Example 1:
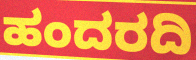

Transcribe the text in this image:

ಹಂದರದಿ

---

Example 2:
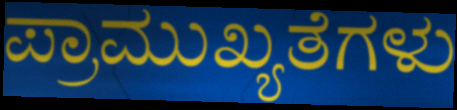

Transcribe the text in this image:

ಪ್ರಾಮುಖ್ಯತೆಗಳು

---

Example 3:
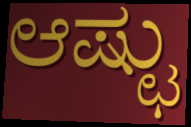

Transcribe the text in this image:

ಆಷ್ಟು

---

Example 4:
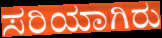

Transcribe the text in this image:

ಸರಿಯಾಗಿರು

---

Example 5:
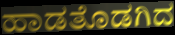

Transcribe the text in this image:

ಹಾಡತೊಡಗಿದ